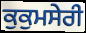
ਕੁਕੁਮਸੇਰੀ